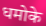
धमोके